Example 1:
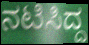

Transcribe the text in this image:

ನಟಿಸಿದ್ದ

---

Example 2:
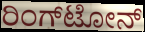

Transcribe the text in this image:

ರಿಂಗ್‌ಟೋನ್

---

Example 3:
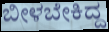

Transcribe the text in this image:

ಬೀಳಬೇಕಿದ್ದ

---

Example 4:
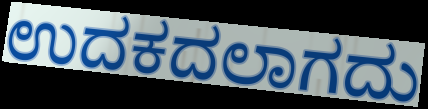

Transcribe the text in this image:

ಉದಕದಲಾಗದು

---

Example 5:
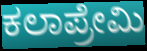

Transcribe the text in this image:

ಕಲಾಪ್ರೇಮಿ